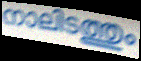
നാലിടത്തും